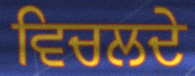
ਵਿਚਲਦੇ